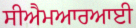
ਸੀਐਮਆਰਆਈ